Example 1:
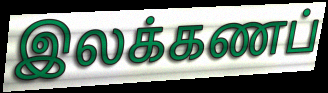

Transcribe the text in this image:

இலக்கணப்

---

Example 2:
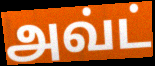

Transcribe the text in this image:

அவ்ட்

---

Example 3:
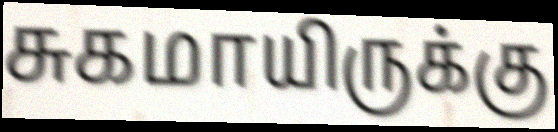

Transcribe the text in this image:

சுகமாயிருக்கு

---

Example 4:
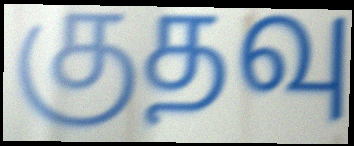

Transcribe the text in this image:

குதவு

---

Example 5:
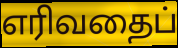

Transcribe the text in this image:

எரிவதைப்